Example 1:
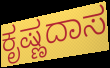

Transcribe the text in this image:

ಕೃಷ್ಣದಾಸ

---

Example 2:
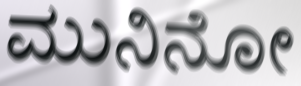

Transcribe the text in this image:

ಮುನಿನೋ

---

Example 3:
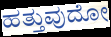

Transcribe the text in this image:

ಹತ್ತುವುದೋ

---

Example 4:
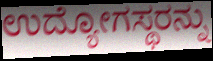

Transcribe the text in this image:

ಉದ್ಯೋಗಸ್ಥರನ್ನು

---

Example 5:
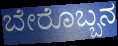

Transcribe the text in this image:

ಬೇರೊಬ್ಬನ